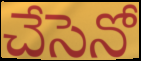
చేసెనో